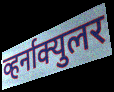
व्हर्नाक्युलर